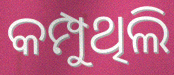
କମ୍ପୁଥିଲି